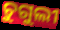
ଚୁଗୁଲୀ